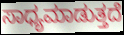
ಸಾಧ್ಯಮಾಡುತ್ತದೆ